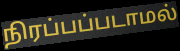
நிரப்பப்படாமல்